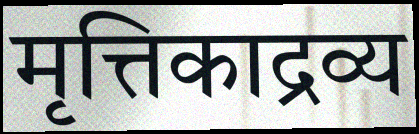
मृत्तिकाद्रव्य